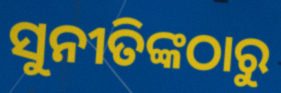
ସୁନୀତିଙ୍କଠାରୁ